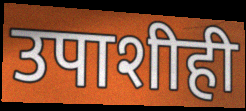
उपाशीही